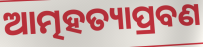
ଆତ୍ମହତ୍ୟାପ୍ରବଣ